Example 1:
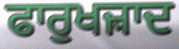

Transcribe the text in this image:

ਫਾਰੁਖਜ਼ਾਦ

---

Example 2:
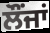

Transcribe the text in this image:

ਲੌਂਜਾਂ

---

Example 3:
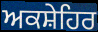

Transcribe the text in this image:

ਅਕਸ਼ੇਹਿਰ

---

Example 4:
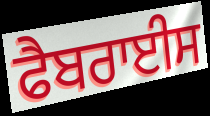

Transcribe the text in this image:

ਫੈਬਰਾਈਸ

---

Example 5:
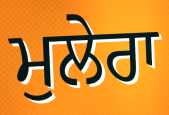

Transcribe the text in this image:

ਮੁਲੇਰਾ